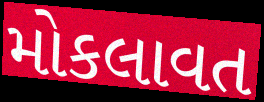
મોકલાવત